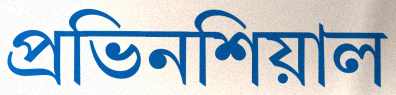
প্রভিনশিয়াল